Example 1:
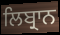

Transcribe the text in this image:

ਲਿਬ੍ਰਾਨ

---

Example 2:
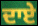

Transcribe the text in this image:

ਦਾਏ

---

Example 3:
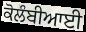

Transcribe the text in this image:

ਕੋਲੰਬੀਆਈ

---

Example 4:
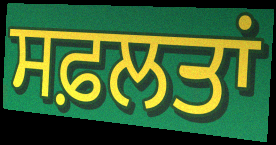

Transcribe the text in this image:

ਸਫ਼ਲਤਾਂ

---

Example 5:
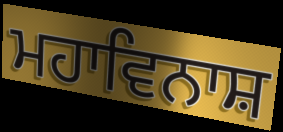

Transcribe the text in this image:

ਮਹਾਵਿਨਾਸ਼